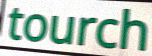
tourch